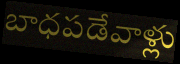
బాధపడేవాళ్లు